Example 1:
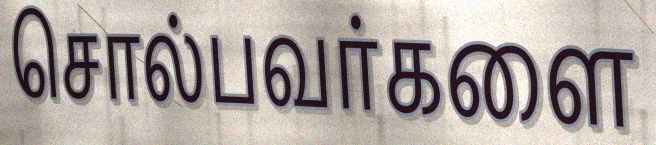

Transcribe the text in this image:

சொல்பவர்களை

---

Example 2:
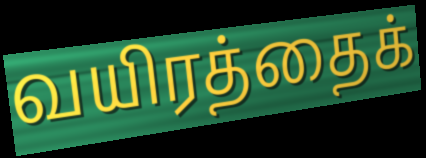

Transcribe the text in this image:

வயிரத்தைக்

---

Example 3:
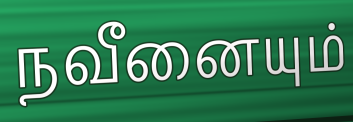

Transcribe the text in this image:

நவீனையும்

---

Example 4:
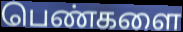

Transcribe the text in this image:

பெண்களை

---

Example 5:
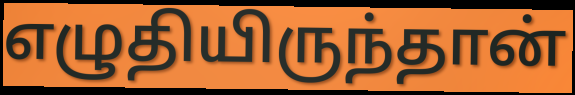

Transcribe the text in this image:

எழுதியிருந்தான்